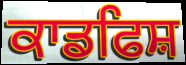
ਕਾਡਫਿਸ਼